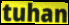
tuhan